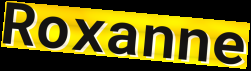
Roxanne